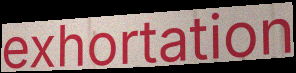
exhortation